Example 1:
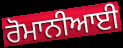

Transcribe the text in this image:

ਰੋਮਾਨੀਆਈ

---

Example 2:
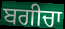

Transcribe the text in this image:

ਬਗੀਚਾ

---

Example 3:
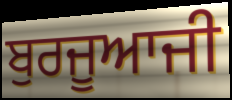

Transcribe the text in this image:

ਬੁਰਜੂਆਜੀ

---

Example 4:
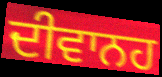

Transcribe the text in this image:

ਦੀਵਾਨਹ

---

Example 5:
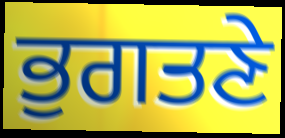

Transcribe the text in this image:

ਭੁਗਤਣੇ